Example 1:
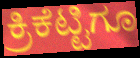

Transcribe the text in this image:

ಕ್ರಿಕೆಟ್ಟಿಗೂ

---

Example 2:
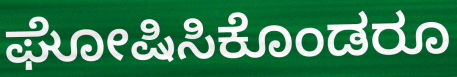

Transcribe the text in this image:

ಘೋಷಿಸಿಕೊಂಡರೂ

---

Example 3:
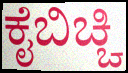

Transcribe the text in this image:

ಕೈಬಿಚ್ಚಿ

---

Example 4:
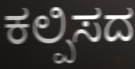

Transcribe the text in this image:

ಕಲ್ಪಿಸದ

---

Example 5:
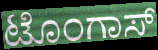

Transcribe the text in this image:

ಟೊಂಗಾಸ್